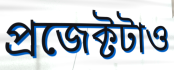
প্রজেক্টটাও